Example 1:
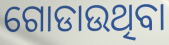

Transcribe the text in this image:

ଗୋଡାଉଥିବା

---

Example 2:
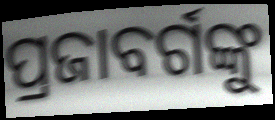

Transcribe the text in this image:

ପ୍ରଜାବର୍ଗଙ୍କୁ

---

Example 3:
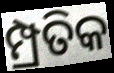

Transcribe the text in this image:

ମ୍ପ୍ରତିକ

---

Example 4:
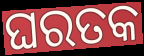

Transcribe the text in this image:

ଘରତକ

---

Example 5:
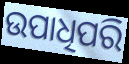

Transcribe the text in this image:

ଉପାଧିପରି